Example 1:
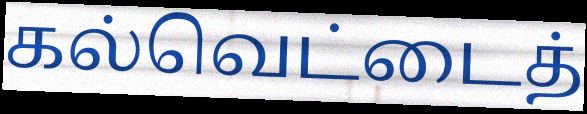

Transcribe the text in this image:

கல்வெட்டைத்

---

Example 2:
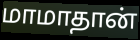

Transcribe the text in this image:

மாமாதான்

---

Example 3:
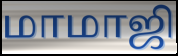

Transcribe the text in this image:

மாமாஜி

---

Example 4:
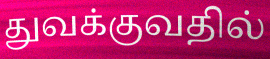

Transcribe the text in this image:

துவக்குவதில்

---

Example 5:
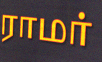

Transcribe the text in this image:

ராமர்